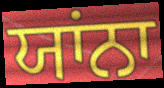
ਯਾਂਨਾ